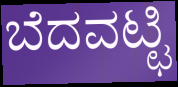
ಬೆದವಟ್ಟಿ